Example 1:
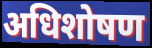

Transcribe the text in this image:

अधिशोषण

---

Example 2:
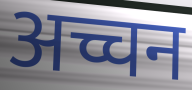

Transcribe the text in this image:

अच्चन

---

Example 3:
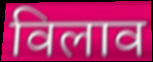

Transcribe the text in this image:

विलाव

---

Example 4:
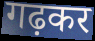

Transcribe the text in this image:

गढ़कर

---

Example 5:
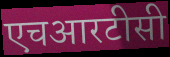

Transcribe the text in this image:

एचआरटीसी